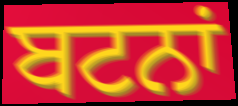
ਬਟਨਾਂ